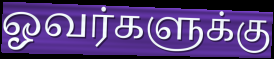
ஓவர்களுக்கு